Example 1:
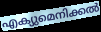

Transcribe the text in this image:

എക്യുമെനിക്കൽ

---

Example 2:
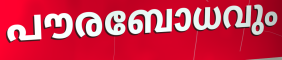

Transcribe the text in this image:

പൗരബോധവും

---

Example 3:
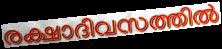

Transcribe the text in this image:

രക്ഷാദിവസത്തിൽ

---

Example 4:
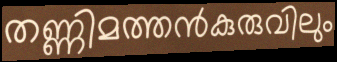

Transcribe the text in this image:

തണ്ണിമത്തൻകുരുവിലും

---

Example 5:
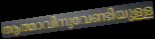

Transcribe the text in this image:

ആത്മാവിനുവേണ്ടിയുള്ള